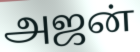
அஜன்